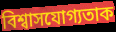
বিশ্বাসযোগ্যতাক